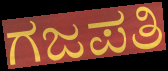
ಗಜಪತಿ